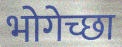
भोगेच्छा